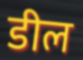
डील